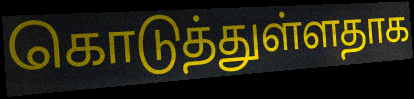
கொடுத்துள்ளதாக